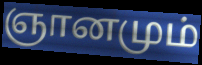
ஞானமும்